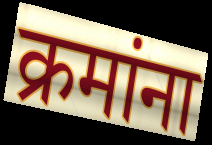
क्रमांना